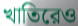
খাতিরেও